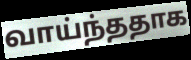
வாய்ந்ததாக